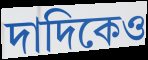
দাদিকেও